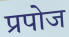
प्रपोज